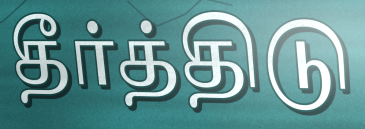
தீர்த்திடு